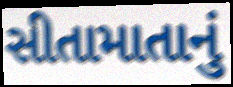
સીતામાતાનું